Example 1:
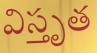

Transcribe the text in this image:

విస్తృత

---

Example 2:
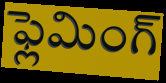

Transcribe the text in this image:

ఫ్లెమింగ్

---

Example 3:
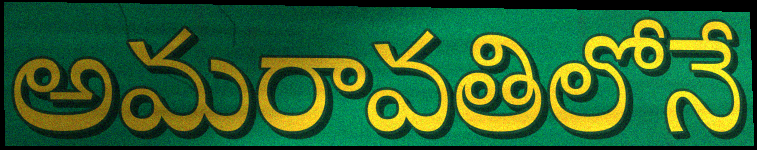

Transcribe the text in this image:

అమరావతిలోనే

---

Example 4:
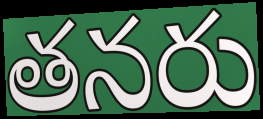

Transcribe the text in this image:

తనరు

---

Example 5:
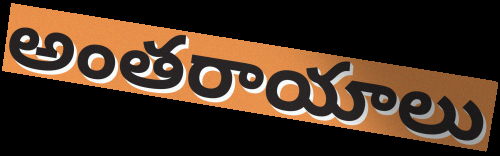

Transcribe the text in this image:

అంతరాయాలు